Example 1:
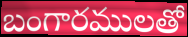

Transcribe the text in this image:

బంగారములతో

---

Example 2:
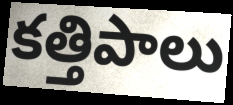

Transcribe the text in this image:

కత్తిపాలు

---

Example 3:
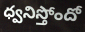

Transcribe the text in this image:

ధ్వనిస్తోందో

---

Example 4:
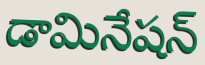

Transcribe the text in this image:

డామినేషన్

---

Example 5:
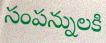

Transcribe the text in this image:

సంపన్నులకి